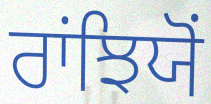
ਰਾਂਝਿਯੋਂ